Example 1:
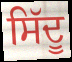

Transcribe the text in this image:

ਸਿੱਦੂ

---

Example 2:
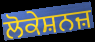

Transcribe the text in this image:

ਲੋਕੇਸ਼ਨਜ਼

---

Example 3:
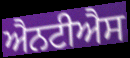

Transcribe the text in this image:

ਐਨਟੀਐਸ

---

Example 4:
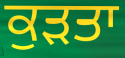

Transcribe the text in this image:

ਕੁੜਤਾ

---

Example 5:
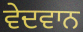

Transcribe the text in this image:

ਵੇਦਵਾਨ